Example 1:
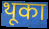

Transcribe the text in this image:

थूका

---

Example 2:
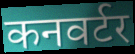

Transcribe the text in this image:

कनवर्टर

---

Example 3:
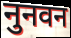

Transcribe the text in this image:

नुनवन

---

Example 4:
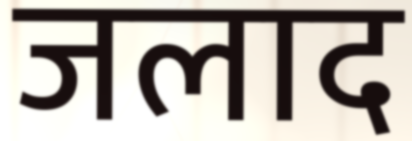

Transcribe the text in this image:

जलाद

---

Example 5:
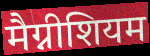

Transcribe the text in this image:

मैग्नीशियम